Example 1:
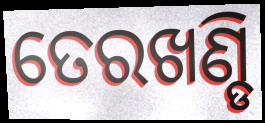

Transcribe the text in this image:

ତେରଖଣ୍ଡି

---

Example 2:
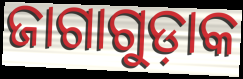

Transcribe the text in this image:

ଜାଗାଗୁଡ଼ାକ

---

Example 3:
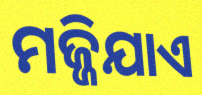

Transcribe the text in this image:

ମଜ୍ଜିଯାଏ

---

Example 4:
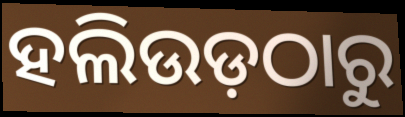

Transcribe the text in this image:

ହଲିଉଡ଼ଠାରୁ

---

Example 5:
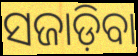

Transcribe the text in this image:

ସଜାଡ଼ିବା